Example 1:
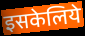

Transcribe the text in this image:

इसकेलिये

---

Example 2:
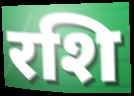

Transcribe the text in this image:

रशि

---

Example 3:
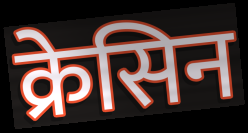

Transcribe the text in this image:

क्रेसिन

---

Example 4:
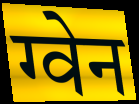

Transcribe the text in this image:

ग्वेन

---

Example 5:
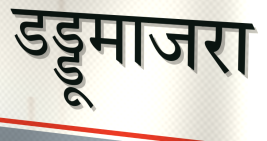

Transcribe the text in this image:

डड्डूमाजरा